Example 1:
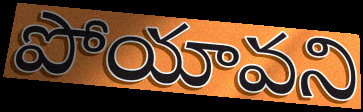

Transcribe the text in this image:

పోయావని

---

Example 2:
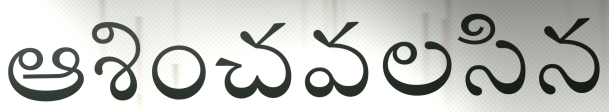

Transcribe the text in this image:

ఆశించవలసిన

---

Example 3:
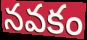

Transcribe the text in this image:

నవకం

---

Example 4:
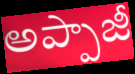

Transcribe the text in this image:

అప్పాజీ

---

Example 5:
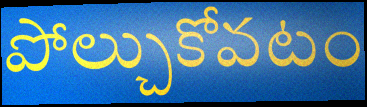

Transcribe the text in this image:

పోల్చుకోవటం